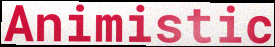
Animistic